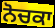
ਨੋਚਕਾ